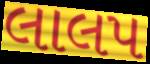
લાલપ